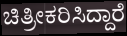
ಚಿತ್ರೀಕರಿಸಿದ್ದಾರೆ